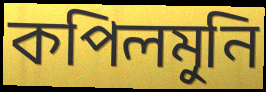
কপিলমুনি